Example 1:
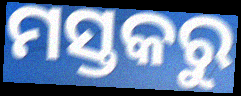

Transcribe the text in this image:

ମସ୍ତକରୁ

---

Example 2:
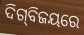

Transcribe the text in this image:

ଦିଗ୍‌ବିଜୟରେ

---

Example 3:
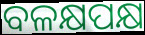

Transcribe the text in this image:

ବଳକ୍ଷପକ୍ଷ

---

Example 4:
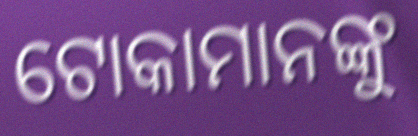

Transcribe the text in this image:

ଟୋକାମାନଙ୍କୁ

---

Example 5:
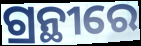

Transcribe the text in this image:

ଗ୍ରନ୍ଥୀରେ